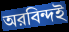
অরবিন্দই